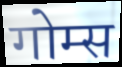
गोम्स